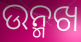
ଉନ୍ମଖ